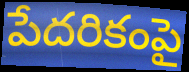
పేదరికంపై